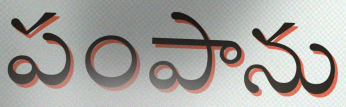
పంపాను